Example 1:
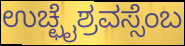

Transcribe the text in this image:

ಉಚ್ಛೈಶ್ರವಸ್ಸೆಂಬ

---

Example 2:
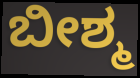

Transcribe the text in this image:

ಬೀಶ್ಮ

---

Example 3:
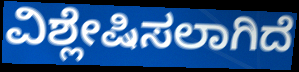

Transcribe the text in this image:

ವಿಶ್ಲೇಷಿಸಲಾಗಿದೆ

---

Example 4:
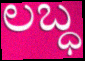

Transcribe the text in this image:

ಲಬ್ಧ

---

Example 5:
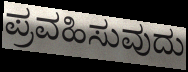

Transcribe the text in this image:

ಪ್ರವಹಿಸುವುದು